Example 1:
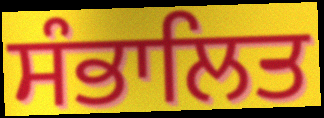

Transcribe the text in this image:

ਸੰਭਾਲਿਤ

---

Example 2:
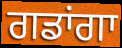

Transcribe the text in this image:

ਗਡਾਂਗਾ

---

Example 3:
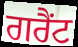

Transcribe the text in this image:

ਗਰੈਂਟ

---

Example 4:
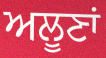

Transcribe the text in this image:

ਅਲੂਣਾਂ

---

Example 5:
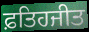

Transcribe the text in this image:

ਫ਼ਤਿਹਜੀਤ